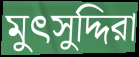
মুৎসুদ্দিরা